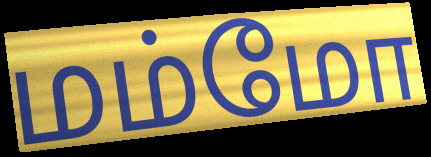
மம்மோ